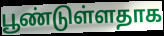
பூண்டுள்ளதாக